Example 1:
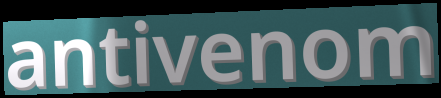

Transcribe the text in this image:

antivenom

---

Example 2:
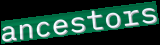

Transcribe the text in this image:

ancestors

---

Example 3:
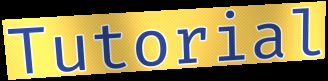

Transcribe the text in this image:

Tutorial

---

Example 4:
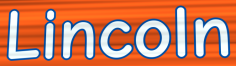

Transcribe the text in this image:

Lincoln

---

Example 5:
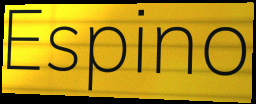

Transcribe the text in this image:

Espino